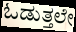
ಓಡುತ್ತಲೇ